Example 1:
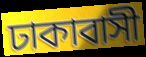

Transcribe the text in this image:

ঢাকাবাসী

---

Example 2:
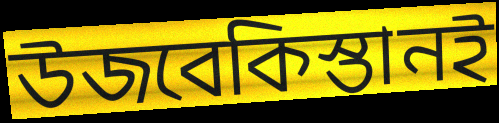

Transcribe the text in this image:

উজবেকিস্তানই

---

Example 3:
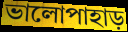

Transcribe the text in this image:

ভালোপাহাড়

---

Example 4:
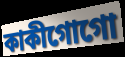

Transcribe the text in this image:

কাকীগোগো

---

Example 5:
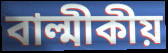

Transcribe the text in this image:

বাল্মীকীয়